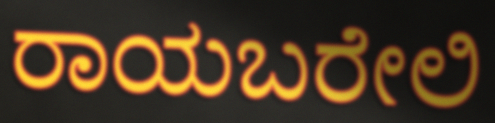
ರಾಯಬರೇಲಿ